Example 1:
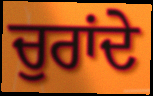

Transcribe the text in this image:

ਚੁਰਾਂਦੇ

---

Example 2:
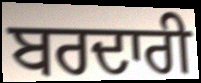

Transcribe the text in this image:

ਬਰਦਾਰੀ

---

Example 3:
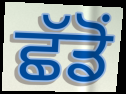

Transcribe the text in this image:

ਛੱਡੋਂ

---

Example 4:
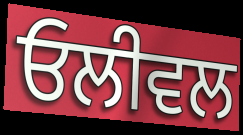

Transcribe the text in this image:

ਓਲੀਵਲ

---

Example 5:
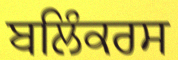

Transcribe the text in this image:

ਬਲਿੰਕਰਸ